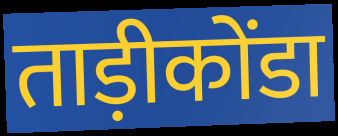
ताड़ीकोंडा